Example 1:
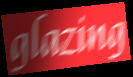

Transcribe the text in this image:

glazing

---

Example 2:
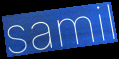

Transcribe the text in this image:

samil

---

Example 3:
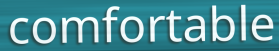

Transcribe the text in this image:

comfortable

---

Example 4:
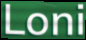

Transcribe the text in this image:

Loni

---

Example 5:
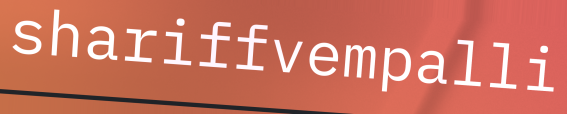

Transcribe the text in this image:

shariffvempalli